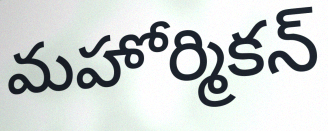
మహోర్మికన్